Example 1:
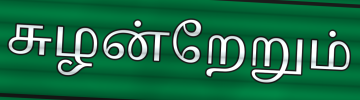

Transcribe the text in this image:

சுழன்றேறும்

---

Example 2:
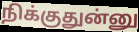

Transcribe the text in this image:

நிக்குதுன்னு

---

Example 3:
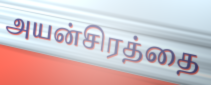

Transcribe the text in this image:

அயன்சிரத்தை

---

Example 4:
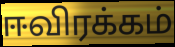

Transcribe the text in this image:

ஈவிரக்கம்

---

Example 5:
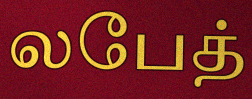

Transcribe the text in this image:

லபேத்